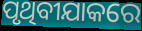
ପୃଥିବୀଯାକରେ